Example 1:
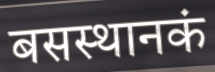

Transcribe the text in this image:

बसस्थानकं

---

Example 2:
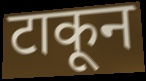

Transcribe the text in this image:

टाकून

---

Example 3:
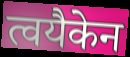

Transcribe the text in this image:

त्वयैकेन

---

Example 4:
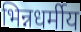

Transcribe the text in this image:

भिन्नधर्मीय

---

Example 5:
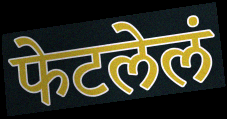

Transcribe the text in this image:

फेटलेलं